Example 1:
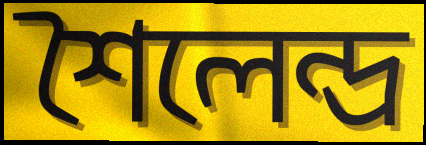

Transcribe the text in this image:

শৈলেন্দ্র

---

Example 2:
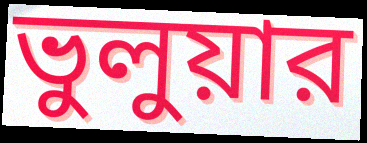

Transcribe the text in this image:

ভুলুয়ার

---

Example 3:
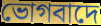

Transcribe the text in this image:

ভোগবাদে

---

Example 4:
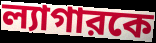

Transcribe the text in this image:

ল্যাগারকে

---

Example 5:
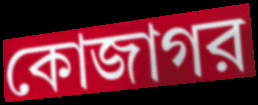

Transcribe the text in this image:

কোজাগর